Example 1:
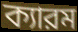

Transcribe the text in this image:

ক্যারম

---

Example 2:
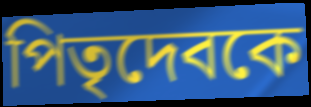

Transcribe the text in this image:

পিতৃদেবকে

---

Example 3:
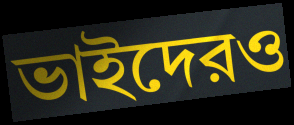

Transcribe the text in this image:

ভাইদেরও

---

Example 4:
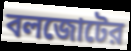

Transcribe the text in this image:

বলজোটের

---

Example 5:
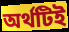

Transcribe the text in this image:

অর্থটিই